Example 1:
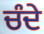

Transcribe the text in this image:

ਚੰਦੇ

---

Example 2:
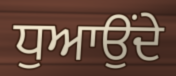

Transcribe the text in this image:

ਧੁਆਉਂਦੇ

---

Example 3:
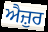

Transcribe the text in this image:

ਐਜ਼ੁਰ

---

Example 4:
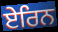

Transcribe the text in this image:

ਏਰਿਨ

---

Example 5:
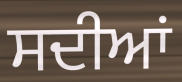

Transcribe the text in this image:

ਸਦੀਆਂ